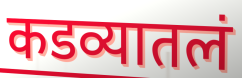
कडव्यातलं